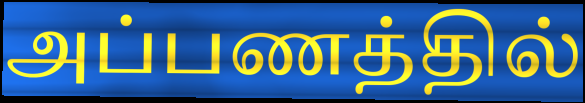
அப்பணத்தில்